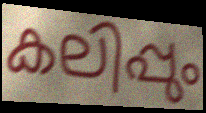
കലിപ്പും